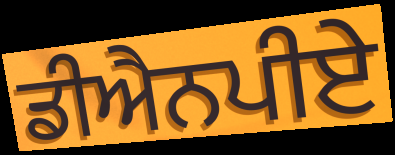
ਡੀਐਨਪੀਏ